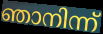
ഞാനിന്ന്